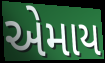
એમાય